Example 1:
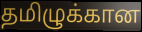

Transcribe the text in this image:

தமிழுக்கான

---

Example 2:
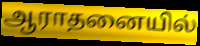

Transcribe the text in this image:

ஆராதனையில்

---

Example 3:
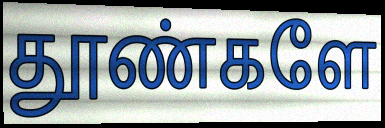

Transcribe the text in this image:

தூண்களே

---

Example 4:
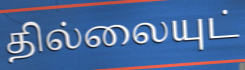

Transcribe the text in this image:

தில்லையுட்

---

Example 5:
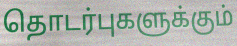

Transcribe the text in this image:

தொடர்புகளுக்கும்